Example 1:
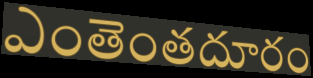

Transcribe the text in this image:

ఎంతెంతదూరం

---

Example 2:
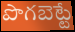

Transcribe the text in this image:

పొగబెట్టే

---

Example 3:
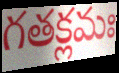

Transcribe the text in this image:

గతక్లమః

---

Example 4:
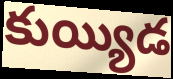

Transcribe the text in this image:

కుయ్యిడ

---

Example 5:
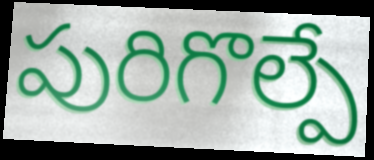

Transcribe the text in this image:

పురిగొల్పే